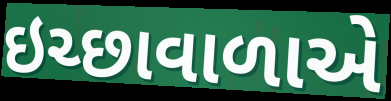
ઇચ્છાવાળાએ